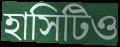
হাসিটিও